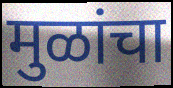
मुळांचा